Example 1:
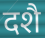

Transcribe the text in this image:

दशै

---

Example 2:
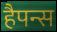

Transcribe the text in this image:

हैपन्स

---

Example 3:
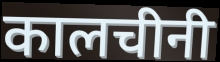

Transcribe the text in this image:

कालचीनी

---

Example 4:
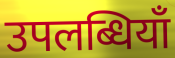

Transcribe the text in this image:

उपलब्धियाँ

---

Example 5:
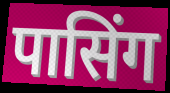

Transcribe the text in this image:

पासिंग